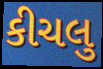
કીચલુ